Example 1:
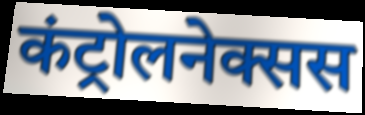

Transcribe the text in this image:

कंट्रोलनेक्सस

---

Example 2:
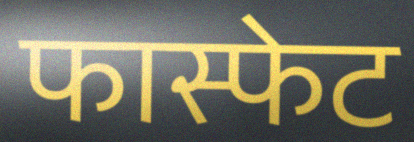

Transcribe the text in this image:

फास्फेट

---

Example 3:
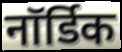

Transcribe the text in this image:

नॉर्डिक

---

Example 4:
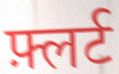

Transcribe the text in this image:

फ़्लर्ट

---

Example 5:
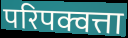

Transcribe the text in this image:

परिपक्वत्ता